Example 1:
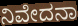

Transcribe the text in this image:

ನಿವೇದನಾ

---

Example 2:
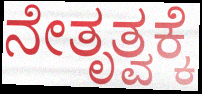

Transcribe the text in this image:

ನೇತೃತ್ವಕ್ಕೆ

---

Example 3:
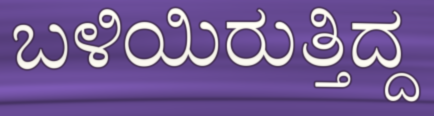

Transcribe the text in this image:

ಬಳಿಯಿರುತ್ತಿದ್ದ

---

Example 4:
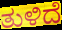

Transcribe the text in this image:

ತುಳಿದೆ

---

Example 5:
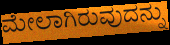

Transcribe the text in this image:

ಮೇಲಾಗಿರುವುದನ್ನು